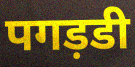
पगड़डी